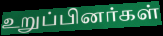
உறுப்பினர்கள்